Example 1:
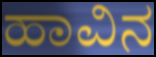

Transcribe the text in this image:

ಹಾವಿನ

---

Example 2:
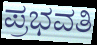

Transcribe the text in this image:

ಪ್ರಭವತಿ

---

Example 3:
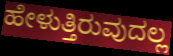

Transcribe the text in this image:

ಹೇಳುತ್ತಿರುವುದಲ್ಲ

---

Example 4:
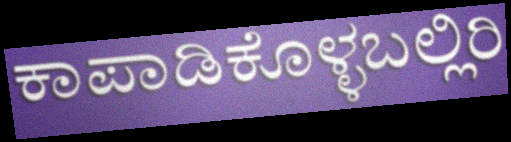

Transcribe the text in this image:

ಕಾಪಾಡಿಕೊಳ್ಳಬಲ್ಲಿರಿ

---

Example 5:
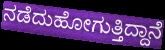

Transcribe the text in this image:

ನಡೆದುಹೋಗುತ್ತಿದ್ದಾನೆ